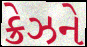
ક્રેઝને